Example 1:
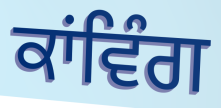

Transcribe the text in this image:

ਕਾਂਵਿੰਗ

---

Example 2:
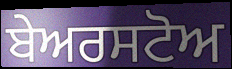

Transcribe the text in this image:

ਬੇਅਰਸਟੋਅ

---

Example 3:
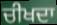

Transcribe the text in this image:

ਚੀਖਦਾ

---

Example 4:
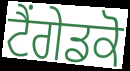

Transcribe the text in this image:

ਟੈਂਗੇਡਕੋ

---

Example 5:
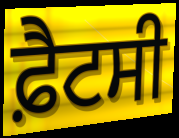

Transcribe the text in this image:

ਫ਼ੈਟਸੀ